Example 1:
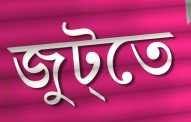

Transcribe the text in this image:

জুট্তে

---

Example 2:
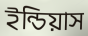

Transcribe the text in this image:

ইন্ডিয়াস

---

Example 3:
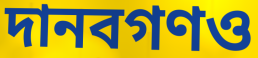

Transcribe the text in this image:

দানবগণও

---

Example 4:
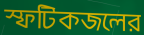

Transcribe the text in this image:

স্ফটিকজলের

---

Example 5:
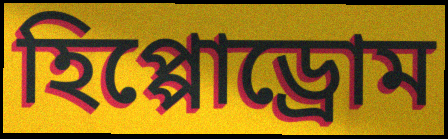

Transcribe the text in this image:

হিপ্পোড্রোম